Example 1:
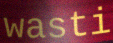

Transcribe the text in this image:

wasti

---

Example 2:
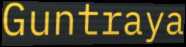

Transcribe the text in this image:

Guntraya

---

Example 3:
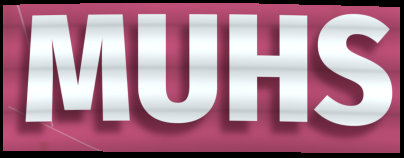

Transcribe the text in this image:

MUHS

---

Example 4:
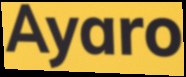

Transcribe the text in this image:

Ayaro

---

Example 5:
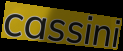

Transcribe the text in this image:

cassini